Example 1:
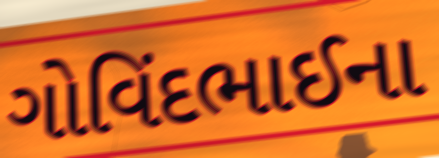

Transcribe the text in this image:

ગોવિંદભાઈના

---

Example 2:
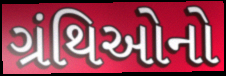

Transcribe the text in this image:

ગ્રંથિઓનો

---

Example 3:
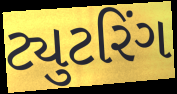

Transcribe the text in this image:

ટ્યુટરિંગ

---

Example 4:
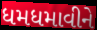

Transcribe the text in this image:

ધમધમાવીને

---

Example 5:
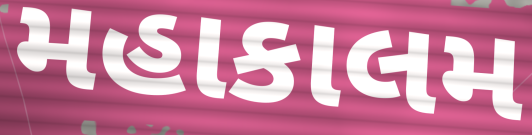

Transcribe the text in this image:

મહાકાલમ